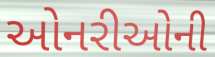
ઓનરીઓની